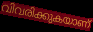
വിവരിക്കുകയാണ്